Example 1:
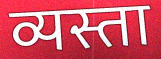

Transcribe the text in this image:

व्यस्ता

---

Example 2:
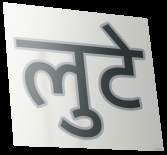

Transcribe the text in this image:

लुटे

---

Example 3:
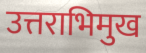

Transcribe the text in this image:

उत्तराभिमुख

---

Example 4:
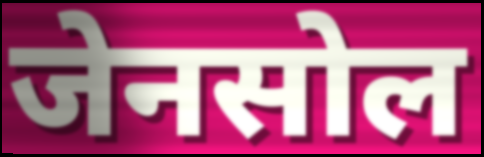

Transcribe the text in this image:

जेनसोल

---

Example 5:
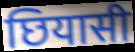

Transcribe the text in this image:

छियासी